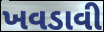
ખવડાવી